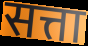
सत्ता